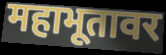
महाभूतावर